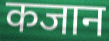
कजान